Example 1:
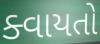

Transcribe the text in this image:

ક્વાયતો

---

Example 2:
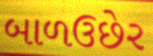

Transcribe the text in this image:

બાળઉછેર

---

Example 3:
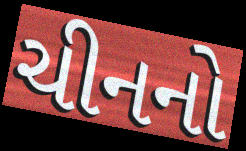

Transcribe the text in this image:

ચીનનો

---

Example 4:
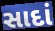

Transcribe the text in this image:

સાદાં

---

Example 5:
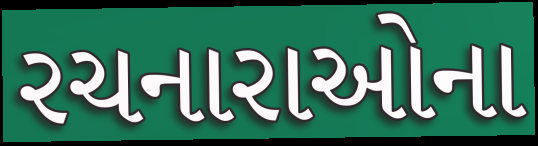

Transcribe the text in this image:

રચનારાઓના